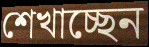
শেখাচ্ছেন